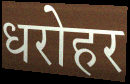
धरोहर